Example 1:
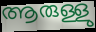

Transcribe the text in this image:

ആരുള്ളു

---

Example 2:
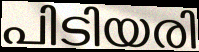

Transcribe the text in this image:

പിടിയരി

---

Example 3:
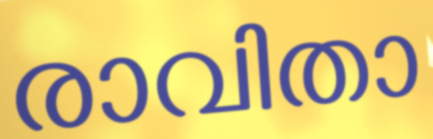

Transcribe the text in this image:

രാവിതാ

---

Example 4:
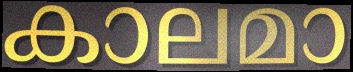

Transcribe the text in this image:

കാലമാ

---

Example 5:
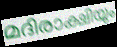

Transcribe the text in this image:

മദിരാക്ഷിയും